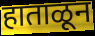
हाताळून